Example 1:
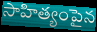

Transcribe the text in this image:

సాహిత్యంపైన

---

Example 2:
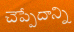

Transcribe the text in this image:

చెప్పేదాన్ని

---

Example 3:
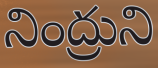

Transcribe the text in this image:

నింద్రుని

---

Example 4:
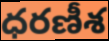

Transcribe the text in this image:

ధరణీశ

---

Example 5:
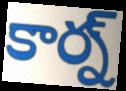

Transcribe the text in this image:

కార్న్